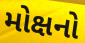
મોક્ષનો